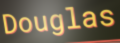
Douglas